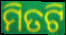
ମିତଟି